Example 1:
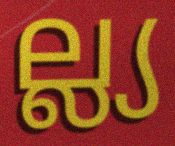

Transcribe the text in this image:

ല്ല്യ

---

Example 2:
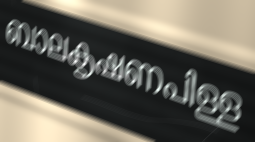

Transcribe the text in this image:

ബാലകൃഷണപിള്ള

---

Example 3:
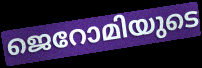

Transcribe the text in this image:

ജെറോമിയുടെ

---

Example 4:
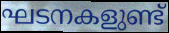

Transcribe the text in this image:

ഘടനകളുണ്ട്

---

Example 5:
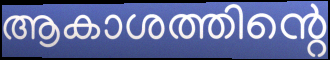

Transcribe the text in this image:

ആകാശത്തിന്റെ